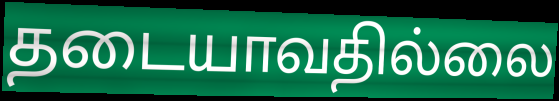
தடையாவதில்லை